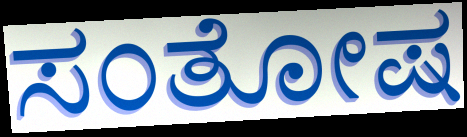
ಸಂತೋಷ